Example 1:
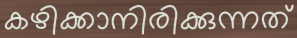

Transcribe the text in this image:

കഴിക്കാനിരിക്കുന്നത്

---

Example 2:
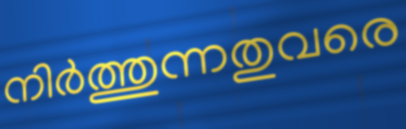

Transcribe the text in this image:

നിർത്തുന്നതുവരെ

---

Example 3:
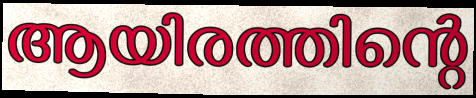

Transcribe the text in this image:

ആയിരത്തിന്റെ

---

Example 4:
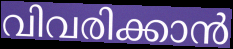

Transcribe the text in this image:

വിവരിക്കാൻ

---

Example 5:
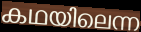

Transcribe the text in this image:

കഥയിലെന്ന